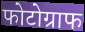
फोटोग्राफ